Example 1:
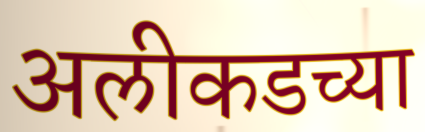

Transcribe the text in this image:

अलीकडच्या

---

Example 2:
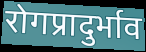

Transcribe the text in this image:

रोगप्रादुर्भाव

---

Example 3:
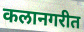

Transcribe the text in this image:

कलानगरीत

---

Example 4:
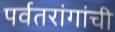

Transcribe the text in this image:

पर्वतरांगांची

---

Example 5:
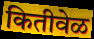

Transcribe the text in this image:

कितीवेळ